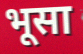
भूसा